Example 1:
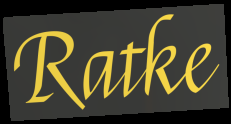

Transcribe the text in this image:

Ratke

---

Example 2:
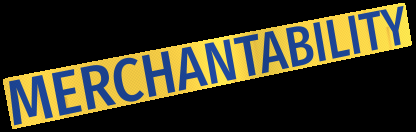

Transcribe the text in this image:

MERCHANTABILITY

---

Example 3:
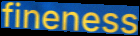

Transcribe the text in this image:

fineness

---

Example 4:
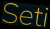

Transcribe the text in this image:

Seti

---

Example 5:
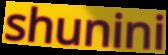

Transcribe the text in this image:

shunini